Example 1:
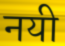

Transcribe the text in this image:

नयी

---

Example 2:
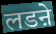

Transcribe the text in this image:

लडऩे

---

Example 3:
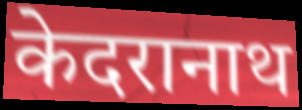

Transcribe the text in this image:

केदरानाथ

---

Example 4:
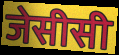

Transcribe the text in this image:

जेसीसी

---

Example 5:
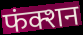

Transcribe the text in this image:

फंक्शन